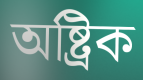
অষ্ট্ৰিক